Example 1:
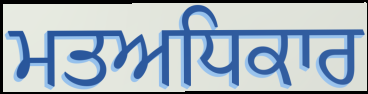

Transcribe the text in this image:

ਮਤਅਧਿਕਾਰ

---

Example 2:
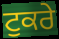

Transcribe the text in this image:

ਟੁਕਰੇ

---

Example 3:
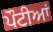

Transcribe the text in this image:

ਪੌਟੀਆਂ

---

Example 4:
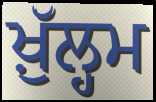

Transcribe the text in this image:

ਖ਼ੁੱਲ੍ਹਮ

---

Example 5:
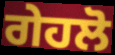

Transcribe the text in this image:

ਗੇਹਲੋ